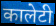
कालेटी